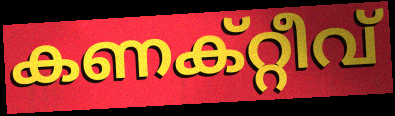
കണക്റ്റീവ്